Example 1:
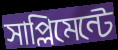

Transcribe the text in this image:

সাপ্লিমেন্টে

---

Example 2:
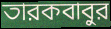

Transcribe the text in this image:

তারকবাবুর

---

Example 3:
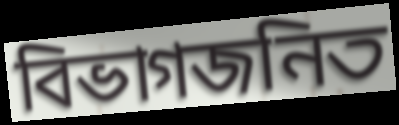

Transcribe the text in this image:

বিভাগজনিত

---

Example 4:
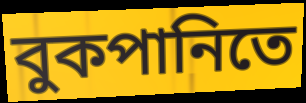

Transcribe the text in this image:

বুকপানিতে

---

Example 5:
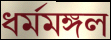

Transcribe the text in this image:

ধর্মমঙ্গল